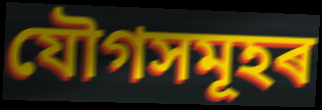
যৌগসমূহৰ